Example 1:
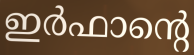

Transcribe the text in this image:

ഇർഫാന്റെ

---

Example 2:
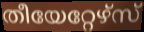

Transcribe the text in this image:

തീയേറ്റേഴ്സ്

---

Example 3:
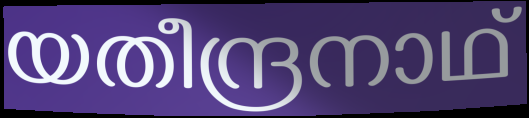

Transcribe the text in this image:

യതീന്ദ്രനാഥ്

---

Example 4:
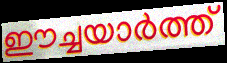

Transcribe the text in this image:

ഈച്ചയാർത്ത്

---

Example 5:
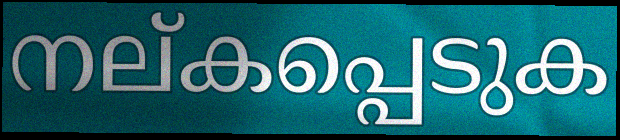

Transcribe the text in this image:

നല്കപ്പെടുക